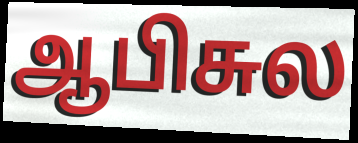
ஆபிசுல